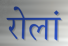
रोलां